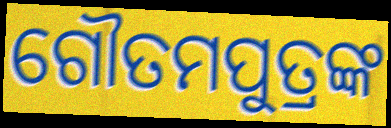
ଗୌତମପୁତ୍ରଙ୍କ